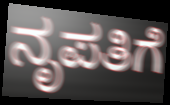
ನೃಪತಿಗೆ